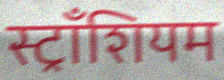
स्ट्राँशियम